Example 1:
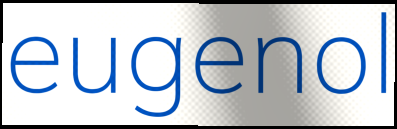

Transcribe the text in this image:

eugenol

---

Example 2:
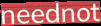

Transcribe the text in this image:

neednot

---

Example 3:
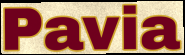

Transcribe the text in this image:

Pavia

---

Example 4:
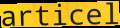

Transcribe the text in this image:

articel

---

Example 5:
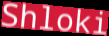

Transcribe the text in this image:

Shloki